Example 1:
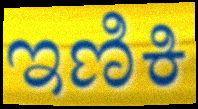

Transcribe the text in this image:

ಇಣಿಕಿ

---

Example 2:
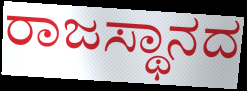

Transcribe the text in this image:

ರಾಜಸ್ಥಾನದ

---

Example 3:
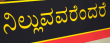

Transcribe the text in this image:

ನಿಲ್ಲುವವರೆಂದರೆ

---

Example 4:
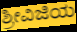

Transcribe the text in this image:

ಶ್ರೀವಿಜಿಯ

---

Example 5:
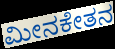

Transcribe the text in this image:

ಮೀನಕೇತನ